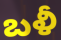
బళీ